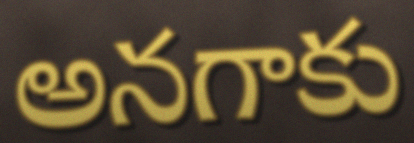
అనగాకు